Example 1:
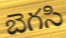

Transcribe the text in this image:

బెగసి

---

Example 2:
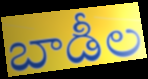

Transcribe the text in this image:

బాడీల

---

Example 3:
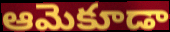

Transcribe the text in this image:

ఆమెకూడా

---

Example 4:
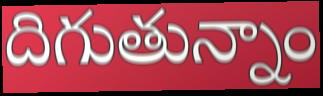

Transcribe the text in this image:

దిగుతున్నాం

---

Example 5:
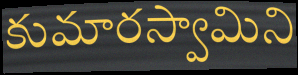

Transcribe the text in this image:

కుమారస్వామిని